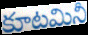
కూటమినీ